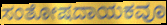
ಸಂತೋಷದಾಯಕವೂ